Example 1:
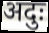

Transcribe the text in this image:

अदुः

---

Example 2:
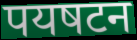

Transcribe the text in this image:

पयषटन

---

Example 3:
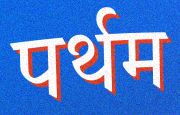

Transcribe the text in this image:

पर्थम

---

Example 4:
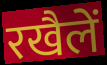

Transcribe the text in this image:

रखैलें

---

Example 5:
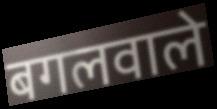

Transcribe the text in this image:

बगलवाले